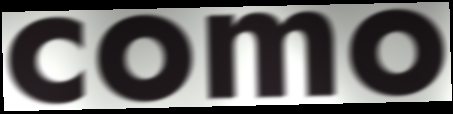
como